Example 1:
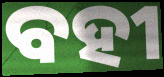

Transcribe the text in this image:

ବହୀ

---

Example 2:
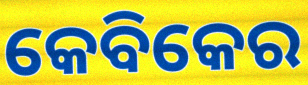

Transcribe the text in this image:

କେବିକେର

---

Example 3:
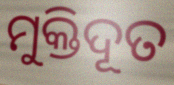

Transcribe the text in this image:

ମୁକ୍ତିଦୂତ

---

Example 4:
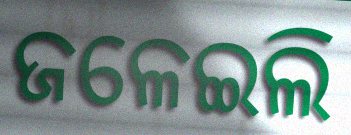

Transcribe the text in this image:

ଜଳେଇଲି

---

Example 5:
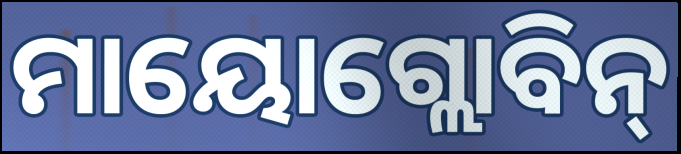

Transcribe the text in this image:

ମାୟୋଗ୍ଲୋବିନ୍